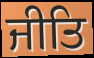
ਜੀਤਿ